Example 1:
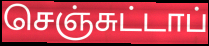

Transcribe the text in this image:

செஞ்சுட்டாப்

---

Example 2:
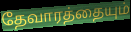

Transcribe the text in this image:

தேவாரத்தையும்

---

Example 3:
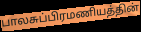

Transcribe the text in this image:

பாலசுப்பிரமணியத்தின்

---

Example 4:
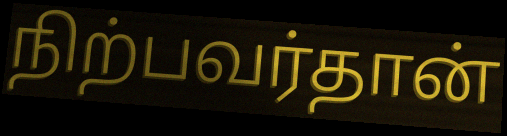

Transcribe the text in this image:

நிற்பவர்தான்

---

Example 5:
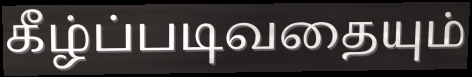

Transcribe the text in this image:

கீழ்ப்படிவதையும்